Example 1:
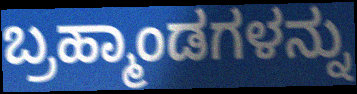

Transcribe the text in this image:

ಬ್ರಹ್ಮಾಂಡಗಳನ್ನು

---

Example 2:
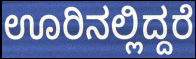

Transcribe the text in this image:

ಊರಿನಲ್ಲಿದ್ದರೆ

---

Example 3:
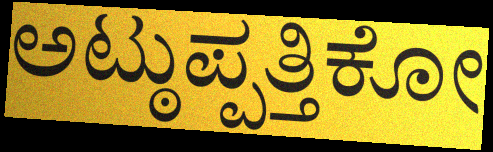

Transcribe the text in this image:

ಅಟ್ಠುಪ್ಪತ್ತಿಕೋ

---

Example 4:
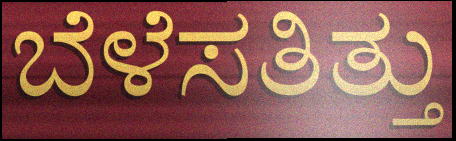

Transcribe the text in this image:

ಬೆಳೆಸತಿತ್ತು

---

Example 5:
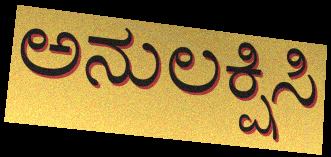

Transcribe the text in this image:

ಅನುಲಕ್ಷಿಸಿ